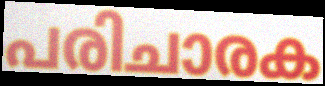
പരിചാരക